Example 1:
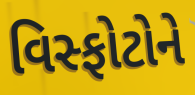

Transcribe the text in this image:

વિસ્ફોટોને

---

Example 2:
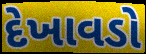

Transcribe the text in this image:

દેખાવડો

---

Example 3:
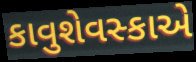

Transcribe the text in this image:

કાવુશેવસ્કાએ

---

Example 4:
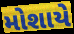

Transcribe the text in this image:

મોશાયે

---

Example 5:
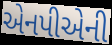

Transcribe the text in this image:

એનપીએની